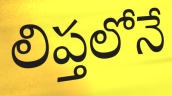
లిప్తలోనే